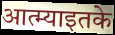
आत्म्याइतके